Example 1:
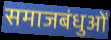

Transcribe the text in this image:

समाजबंधुओं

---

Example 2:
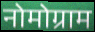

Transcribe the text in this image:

नोमोग्राम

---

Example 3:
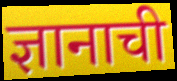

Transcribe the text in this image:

ज्ञानाची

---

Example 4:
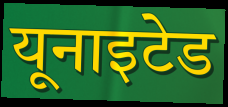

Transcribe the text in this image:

यूनाइटेड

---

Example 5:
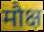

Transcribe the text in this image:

मौक्ष